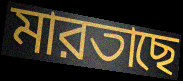
মারতাছে